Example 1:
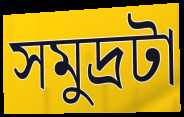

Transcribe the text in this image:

সমুদ্রটা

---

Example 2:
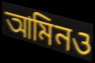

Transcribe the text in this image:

আমিনও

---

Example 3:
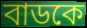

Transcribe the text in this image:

বাডকে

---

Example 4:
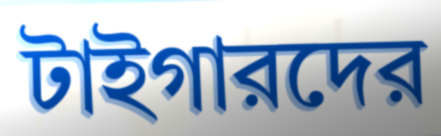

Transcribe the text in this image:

টাইগারদের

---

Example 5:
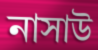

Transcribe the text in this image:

নাসাউ